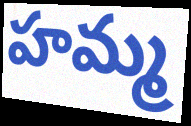
హమ్మ